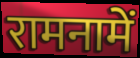
रामनामें